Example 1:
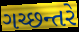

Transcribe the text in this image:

ગચ્છન્તરે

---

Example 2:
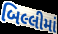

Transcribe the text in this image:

બિલ્લીમાં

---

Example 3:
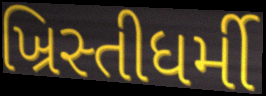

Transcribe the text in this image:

ખ્રિસ્તીધર્મી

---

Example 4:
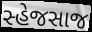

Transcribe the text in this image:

સ્હેજસાજ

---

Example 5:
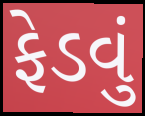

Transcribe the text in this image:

ફેડવું